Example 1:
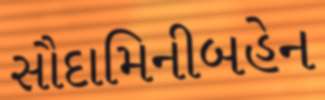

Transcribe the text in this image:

સૌદામિનીબહેન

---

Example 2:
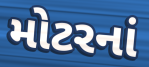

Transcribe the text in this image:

મોટરનાં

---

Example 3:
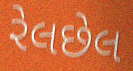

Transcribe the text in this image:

રેલછેલ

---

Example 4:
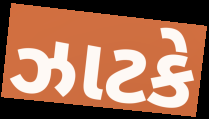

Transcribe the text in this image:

ઝાટકે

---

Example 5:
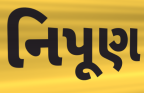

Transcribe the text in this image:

નિપૂણ